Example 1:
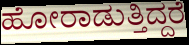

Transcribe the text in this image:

ಹೋರಾಡುತ್ತಿದ್ದರೆ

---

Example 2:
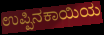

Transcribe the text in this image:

ಉಪ್ಪಿನಕಾಯಿಯ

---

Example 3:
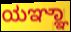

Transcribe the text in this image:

ಯಞ್ಞಾ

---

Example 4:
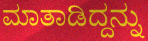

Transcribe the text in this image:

ಮಾತಾಡಿದ್ದನ್ನು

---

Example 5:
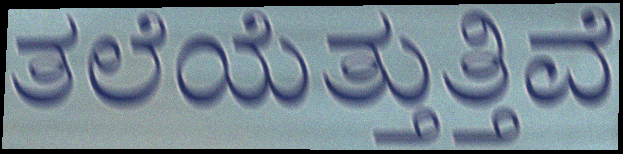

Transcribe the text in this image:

ತಲೆಯೆತ್ತುತ್ತಿವೆ